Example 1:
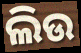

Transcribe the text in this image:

ଲିଉ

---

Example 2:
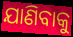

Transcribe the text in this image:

ଯାଣିବାକୁ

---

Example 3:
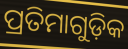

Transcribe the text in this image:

ପ୍ରତିମାଗୁଡ଼ିକ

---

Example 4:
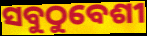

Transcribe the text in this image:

ସବୁଠୁବେଶୀ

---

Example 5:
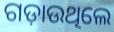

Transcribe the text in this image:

ଗଡ଼ାଉଥିଲେ